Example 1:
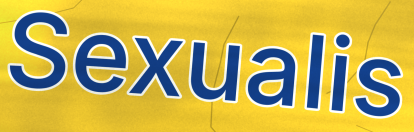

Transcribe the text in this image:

Sexualis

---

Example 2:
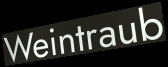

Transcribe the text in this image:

Weintraub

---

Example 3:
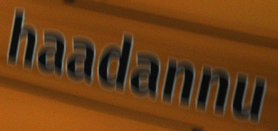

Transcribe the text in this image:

haadannu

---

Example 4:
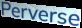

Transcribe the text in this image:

Perverse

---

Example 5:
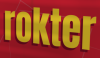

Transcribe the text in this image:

rokter